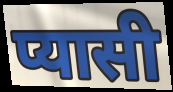
प्यासी